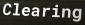
Clearing